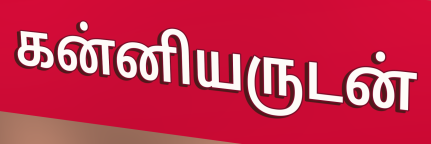
கன்னியருடன்